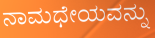
ನಾಮಧೇಯವನ್ನು